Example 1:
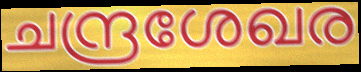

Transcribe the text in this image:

ചന്ദ്രശേഖര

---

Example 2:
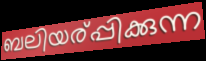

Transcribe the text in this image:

ബലിയര്പ്പിക്കുന്ന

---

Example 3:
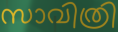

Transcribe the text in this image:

സാവിത്രി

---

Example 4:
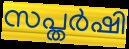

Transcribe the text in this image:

സപ്തർഷി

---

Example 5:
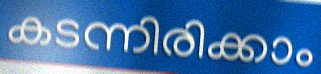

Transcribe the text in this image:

കടന്നിരിക്കാം